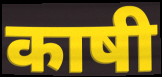
काषी